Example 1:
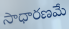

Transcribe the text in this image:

సాధారణమే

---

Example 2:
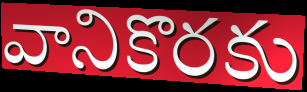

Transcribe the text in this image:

వానికొరకు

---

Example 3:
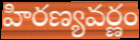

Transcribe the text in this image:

హిరణ్యవర్ణం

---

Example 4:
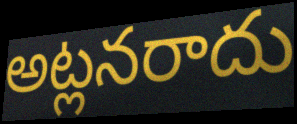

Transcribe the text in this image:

అట్లనరాదు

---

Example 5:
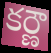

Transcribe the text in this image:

కర్ణౌ